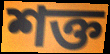
শক্ত